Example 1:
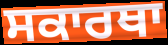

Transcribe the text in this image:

ਸਕਾਰਥਾ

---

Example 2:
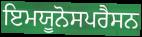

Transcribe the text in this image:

ਇਮਯੂਨੋਸਪਰੈਸਨ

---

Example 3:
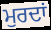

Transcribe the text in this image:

ਮੁਰਦਾਂ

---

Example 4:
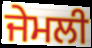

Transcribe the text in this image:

ਜੇਮਲੀ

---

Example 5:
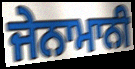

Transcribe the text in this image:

ਜੇਨਾਮਾਨੀ